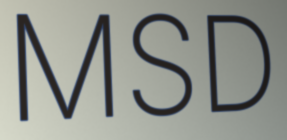
MSD